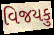
વિજયકુ